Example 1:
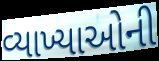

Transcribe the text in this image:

વ્યાખ્યાઓની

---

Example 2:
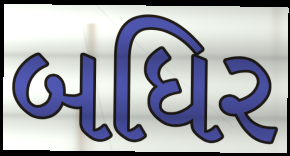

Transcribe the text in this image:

બધિર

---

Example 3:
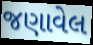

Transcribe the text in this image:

જણાવેલ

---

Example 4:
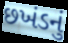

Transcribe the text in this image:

છખંડનું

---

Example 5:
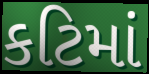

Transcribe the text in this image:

કટિમાં